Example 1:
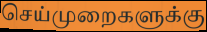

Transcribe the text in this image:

செய்முறைகளுக்கு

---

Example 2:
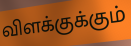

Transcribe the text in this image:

விளக்குக்கும்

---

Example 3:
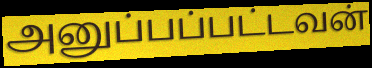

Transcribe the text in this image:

அனுப்பப்பட்டவன்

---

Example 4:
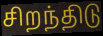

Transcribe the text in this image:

சிறந்திடு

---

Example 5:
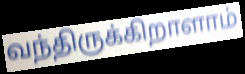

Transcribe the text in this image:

வந்திருக்கிறாளாம்